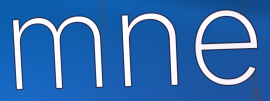
mne